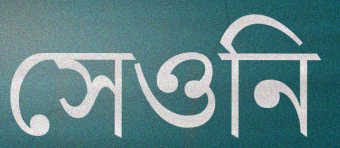
সেওনি